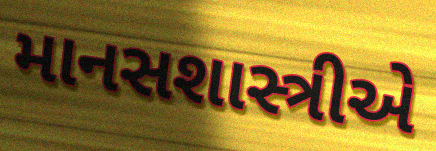
માનસશાસ્ત્રીએ